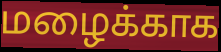
மழைக்காக